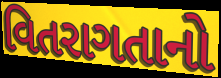
વિતરાગતાનો